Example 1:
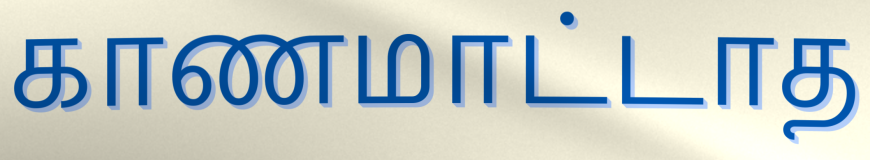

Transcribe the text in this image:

காணமாட்டாத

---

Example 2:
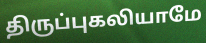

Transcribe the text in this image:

திருப்புகலியாமே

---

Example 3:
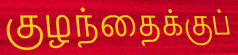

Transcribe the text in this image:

குழந்தைக்குப்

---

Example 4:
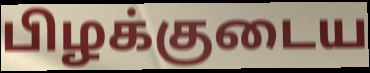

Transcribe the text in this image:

பிழக்குடைய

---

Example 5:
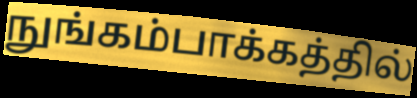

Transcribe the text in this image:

நுங்கம்பாக்கத்தில்